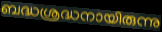
ബദ്ധശ്രദ്ധനായിരുന്നു